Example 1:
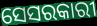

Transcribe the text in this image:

ସେସରକାରୀ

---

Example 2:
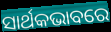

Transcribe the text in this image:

ସାର୍ଥକଭାବରେ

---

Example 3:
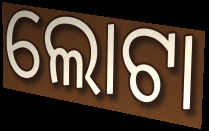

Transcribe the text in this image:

ଲୋଟା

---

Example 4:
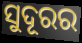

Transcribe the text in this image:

ସୁଦୂରର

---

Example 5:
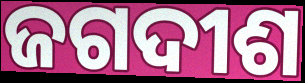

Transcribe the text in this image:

ଜଗଦୀଶ